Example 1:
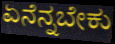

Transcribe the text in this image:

ಏನೆನ್ನಬೇಕು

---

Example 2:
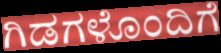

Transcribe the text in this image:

ಗಿಡಗಳೊಂದಿಗೆ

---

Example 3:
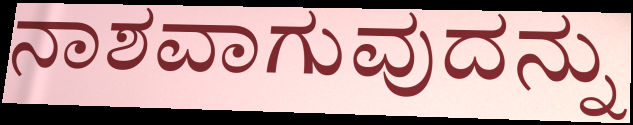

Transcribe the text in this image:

ನಾಶವಾಗುವುದನ್ನು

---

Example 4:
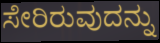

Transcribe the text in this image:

ಸೇರಿರುವುದನ್ನು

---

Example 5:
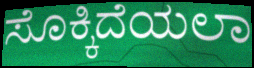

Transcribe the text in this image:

ಸೊಕ್ಕಿದೆಯಲಾ